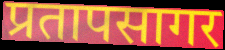
प्रतापसागर